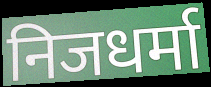
निजधर्मा